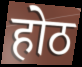
होठ